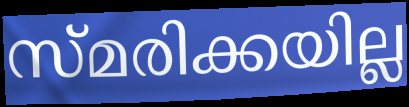
സ്മരിക്കയില്ല